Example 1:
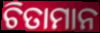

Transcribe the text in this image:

ଚିତାମାନ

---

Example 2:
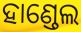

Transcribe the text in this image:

ହାଣ୍ଡେଲ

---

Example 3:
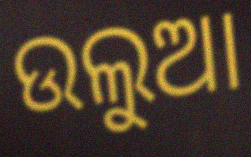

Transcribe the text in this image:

ଉଲୁଆ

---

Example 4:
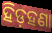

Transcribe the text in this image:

ହିଡ଼ହଣା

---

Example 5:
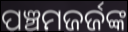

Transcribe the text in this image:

ପଞ୍ଚମଜର୍ଜଙ୍କ